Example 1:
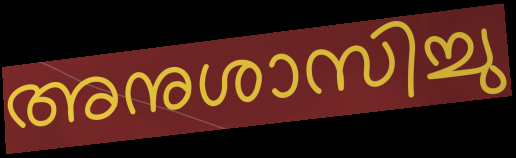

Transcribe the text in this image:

അനുശാസിച്ചു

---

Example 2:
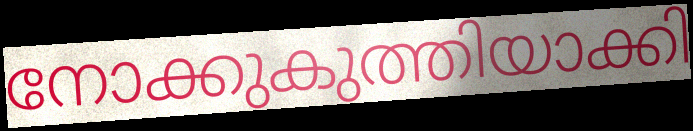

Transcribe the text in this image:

നോക്കുകുത്തിയാക്കി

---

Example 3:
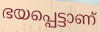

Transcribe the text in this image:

ഭയപ്പെട്ടാണ്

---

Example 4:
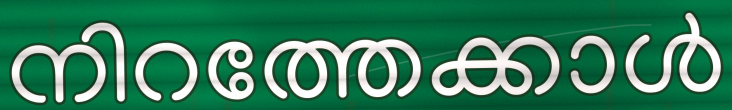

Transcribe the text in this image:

നിറത്തേക്കാൾ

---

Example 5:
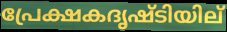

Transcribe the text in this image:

പ്രേക്ഷകദൃഷ്ടിയില്